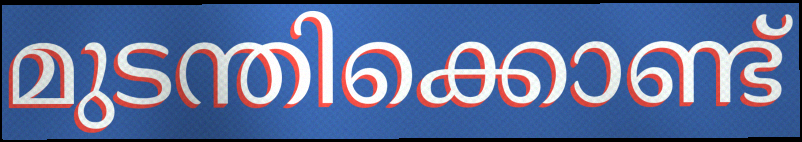
മുടന്തിക്കൊണ്ട്